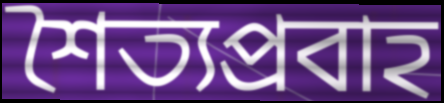
শৈত্যপ্রবাহ